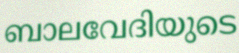
ബാലവേദിയുടെ